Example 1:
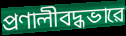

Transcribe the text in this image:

প্ৰণালীবদ্ধভাৱে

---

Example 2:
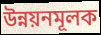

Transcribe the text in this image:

উন্নয়নমূলক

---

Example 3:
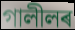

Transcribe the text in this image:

গালীলৰ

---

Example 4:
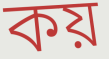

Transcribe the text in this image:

কয়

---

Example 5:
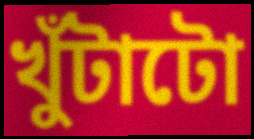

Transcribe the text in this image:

খুঁটাটো